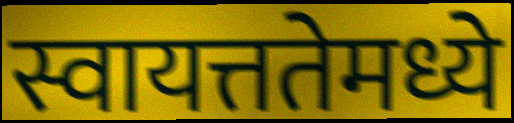
स्वायत्ततेमध्ये